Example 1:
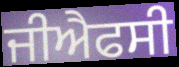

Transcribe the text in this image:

ਜੀਐਫਸੀ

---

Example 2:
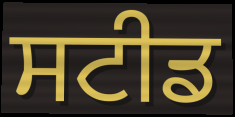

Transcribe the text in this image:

ਸਟੀਡ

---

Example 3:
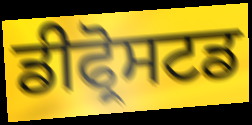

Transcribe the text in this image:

ਡੀਫ੍ਰੋਸਟਡ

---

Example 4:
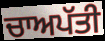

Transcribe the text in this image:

ਚਾਅਪੱਤੀ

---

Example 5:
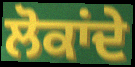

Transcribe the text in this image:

ਲੋਕਾਂਦੇ